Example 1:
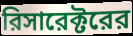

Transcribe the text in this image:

রিসারেক্টরের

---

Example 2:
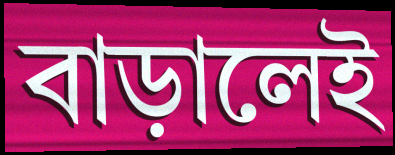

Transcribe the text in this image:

বাড়ালেই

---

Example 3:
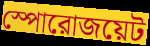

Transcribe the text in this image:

স্পোরোজয়েট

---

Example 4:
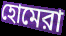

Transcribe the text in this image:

হোমেরা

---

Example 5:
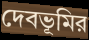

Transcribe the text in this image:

দেবভূমির